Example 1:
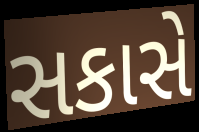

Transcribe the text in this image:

સકાસે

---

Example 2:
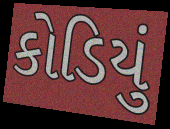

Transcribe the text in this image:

કોડિયું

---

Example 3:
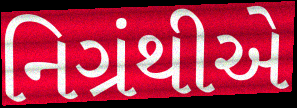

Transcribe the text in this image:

નિગ્રંથીએ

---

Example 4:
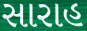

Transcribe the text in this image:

સારાહ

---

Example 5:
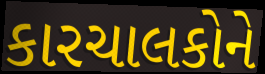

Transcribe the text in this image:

કારચાલકોને